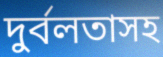
দুর্বলতাসহ